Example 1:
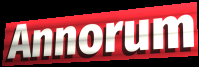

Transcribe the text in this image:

Annorum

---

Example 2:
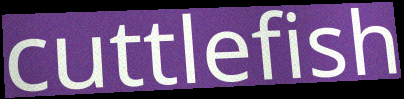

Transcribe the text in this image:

cuttlefish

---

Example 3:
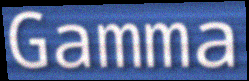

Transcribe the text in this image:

Gamma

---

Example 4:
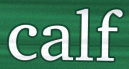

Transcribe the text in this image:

calf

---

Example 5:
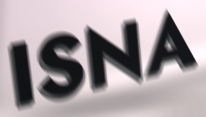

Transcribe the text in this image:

ISNA